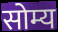
सोम्य